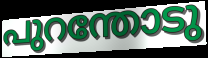
പുറന്തോടു